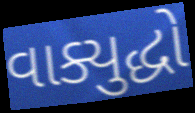
વાક્યુદ્ધો